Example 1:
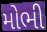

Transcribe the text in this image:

મોભી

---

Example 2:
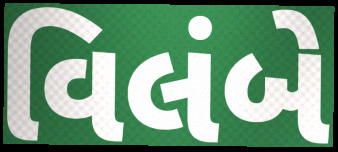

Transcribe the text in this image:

વિલંબે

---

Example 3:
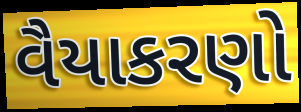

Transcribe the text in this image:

વૈયાકરણો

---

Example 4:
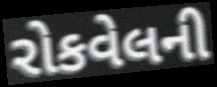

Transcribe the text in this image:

રોકવેલની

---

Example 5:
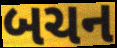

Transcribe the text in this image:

બચન